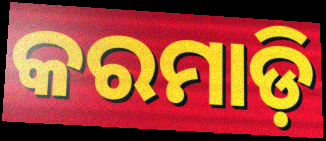
କରମାଡ଼ି